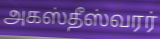
அகஸ்தீஸ்வரர்